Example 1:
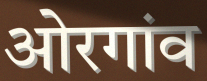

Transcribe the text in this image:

ओरगांव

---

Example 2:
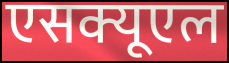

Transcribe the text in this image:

एसक्यूएल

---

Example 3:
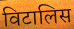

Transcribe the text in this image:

विटालिस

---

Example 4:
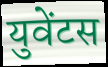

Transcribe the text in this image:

युवेंटस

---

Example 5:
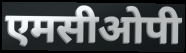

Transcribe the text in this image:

एमसीओपी